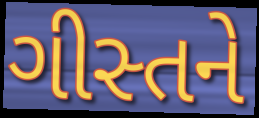
ગીસ્તને